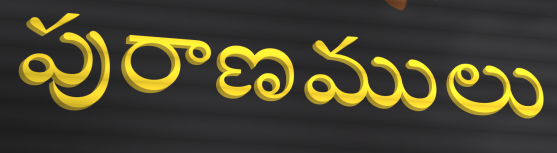
పురాణములు